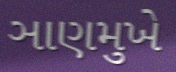
ઞાણમુખે